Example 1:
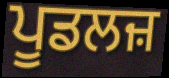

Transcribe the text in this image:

ਪੂਡਲਜ਼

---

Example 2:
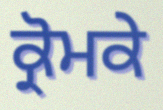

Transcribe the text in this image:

ਕ੍ਰੋਮਕੇ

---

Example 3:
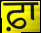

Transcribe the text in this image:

ਫ਼ਾ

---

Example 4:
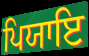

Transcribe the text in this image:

ਪਿਯਾਇ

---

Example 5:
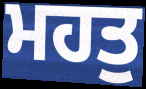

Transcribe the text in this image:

ਮਹਤੁ